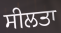
ਸੀਲਤਾ